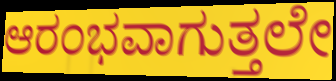
ಆರಂಭವಾಗುತ್ತಲೇ